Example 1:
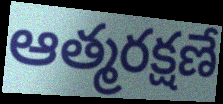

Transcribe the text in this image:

ఆత్మరక్షణే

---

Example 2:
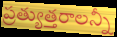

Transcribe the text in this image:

ప్రత్యుత్తరాలన్నీ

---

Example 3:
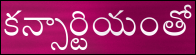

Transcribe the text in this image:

కన్సార్టియంతో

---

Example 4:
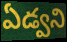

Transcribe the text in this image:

ఏడ్వని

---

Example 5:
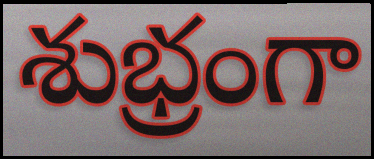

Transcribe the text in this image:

శుభ్రంగా